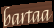
bartaa